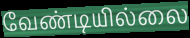
வேண்டியில்லை